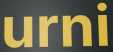
urni